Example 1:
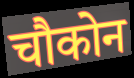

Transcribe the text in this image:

चौकोन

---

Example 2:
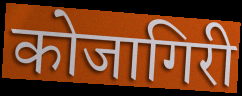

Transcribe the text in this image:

कोजागिरी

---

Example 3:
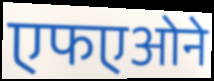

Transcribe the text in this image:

एफएओने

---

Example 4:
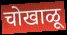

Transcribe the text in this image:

चोखाळू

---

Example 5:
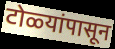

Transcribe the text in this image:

टोळ्यांपासून